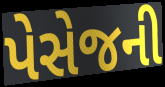
પેસેજની